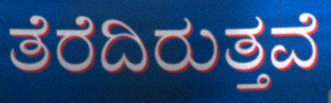
ತೆರೆದಿರುತ್ತವೆ